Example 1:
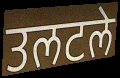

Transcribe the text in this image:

उलटले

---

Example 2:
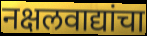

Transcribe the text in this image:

नक्षलवाद्यांचा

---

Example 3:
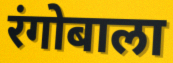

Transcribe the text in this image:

रंगोबाला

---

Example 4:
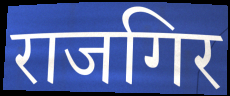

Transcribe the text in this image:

राजगिर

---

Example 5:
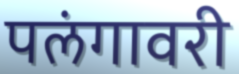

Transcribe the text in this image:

पलंगावरी